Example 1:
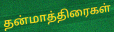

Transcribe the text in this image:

தன்மாத்திரைகள்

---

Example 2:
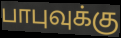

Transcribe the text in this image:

பாபுவுக்கு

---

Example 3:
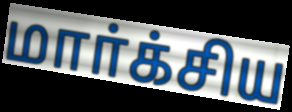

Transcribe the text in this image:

மார்க்சிய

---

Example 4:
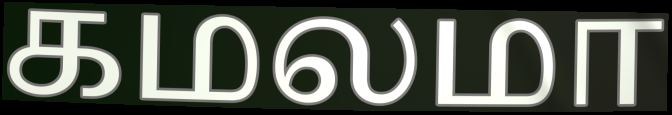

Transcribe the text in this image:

கமலமா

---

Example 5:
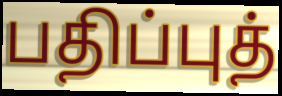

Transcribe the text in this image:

பதிப்புத்